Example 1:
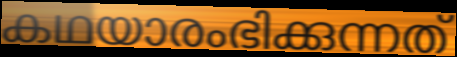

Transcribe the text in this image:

കഥയാരംഭിക്കുന്നത്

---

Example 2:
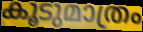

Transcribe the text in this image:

കൂടുമാത്രം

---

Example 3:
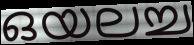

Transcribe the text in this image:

ഒയലച്ച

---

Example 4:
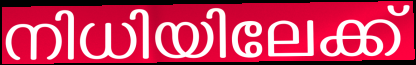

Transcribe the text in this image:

നിധിയിലേക്ക്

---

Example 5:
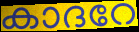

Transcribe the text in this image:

കാദറേ